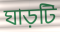
ঘাড়টি